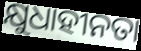
କ୍ଷୁଧାହୀନତା